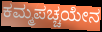
ಕಮ್ಮಪಚ್ಚಯೇನ